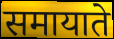
समायाते